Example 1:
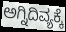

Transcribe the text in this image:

ಅಗ್ನಿದಿವ್ಯಕ್ಕೆ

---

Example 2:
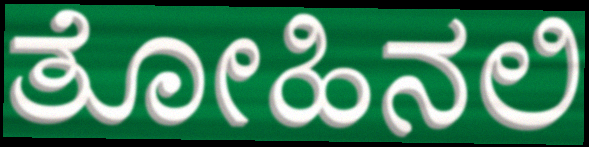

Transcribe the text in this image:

ತೋಹಿನಲಿ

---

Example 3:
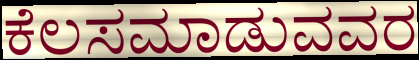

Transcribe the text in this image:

ಕೆಲಸಮಾಡುವವರ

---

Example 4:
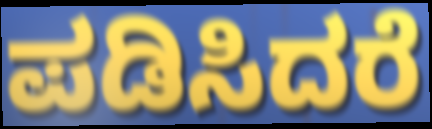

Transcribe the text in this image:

ಪಡಿಸಿದರೆ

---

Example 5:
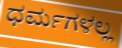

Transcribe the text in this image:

ಧರ್ಮಗಳಲ್ಲ